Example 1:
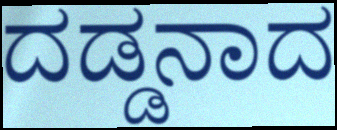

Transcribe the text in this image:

ದಡ್ಡನಾದ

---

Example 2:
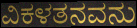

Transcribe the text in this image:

ವಿಕಳತನವನು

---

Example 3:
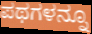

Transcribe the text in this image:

ಪಥಗಳನ್ನೂ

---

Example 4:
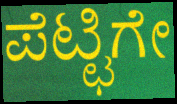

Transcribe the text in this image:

ಪೆಟ್ಟಿಗೇ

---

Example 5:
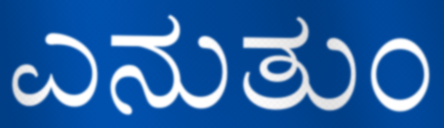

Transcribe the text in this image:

ಎನುತುಂ